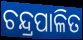
ଚନ୍ଦ୍ରପାଳିତ